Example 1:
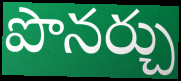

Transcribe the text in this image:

పొనర్చు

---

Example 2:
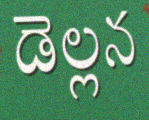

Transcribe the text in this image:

డెల్లన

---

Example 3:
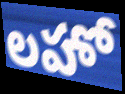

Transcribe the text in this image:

లహో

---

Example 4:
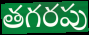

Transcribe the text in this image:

తగరపు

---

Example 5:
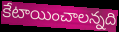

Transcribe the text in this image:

కేటాయించాలన్నది